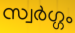
സ്വർഗ്ഗം